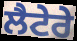
ਲੈਟੇਰੇ